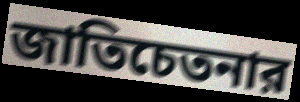
জাতিচেতনার